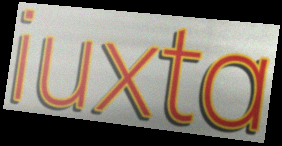
iuxta